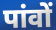
पांवों